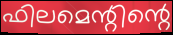
ഫിലമെന്റിന്റെ